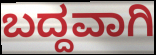
ಬದ್ದವಾಗಿ